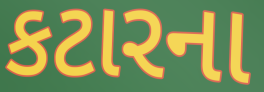
કટારના